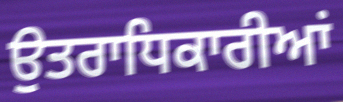
ਉਤਰਾਧਿਕਾਰੀਆਂ